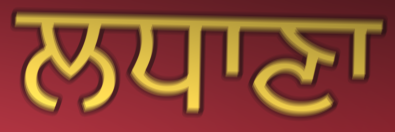
ਲਧਾਣਾ